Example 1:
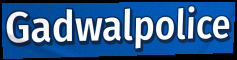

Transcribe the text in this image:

Gadwalpolice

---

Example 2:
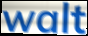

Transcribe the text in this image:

walt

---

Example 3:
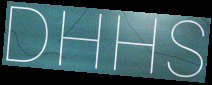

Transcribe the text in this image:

DHHS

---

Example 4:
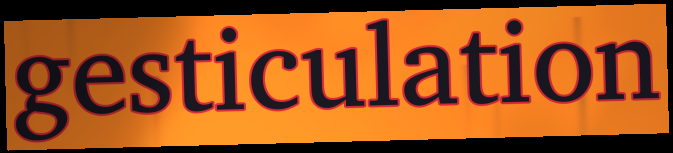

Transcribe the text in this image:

gesticulation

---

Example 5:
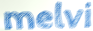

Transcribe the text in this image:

melvi